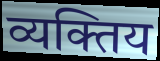
व्यक्तिय